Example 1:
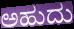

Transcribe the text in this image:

ಅಹುದು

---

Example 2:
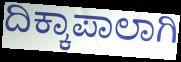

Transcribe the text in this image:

ದಿಕ್ಕಾಪಾಲಾಗಿ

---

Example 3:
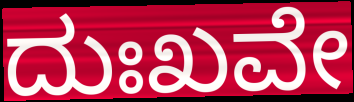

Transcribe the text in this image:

ದುಃಖವೇ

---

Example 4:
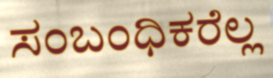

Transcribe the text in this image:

ಸಂಬಂಧಿಕರೆಲ್ಲ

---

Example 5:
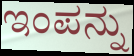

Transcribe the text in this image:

ಇಂಪನ್ನು